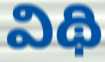
విథి